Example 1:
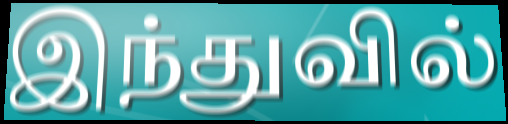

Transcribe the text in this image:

இந்துவில்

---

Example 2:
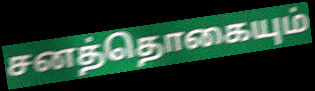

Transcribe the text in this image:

சனத்தொகையும்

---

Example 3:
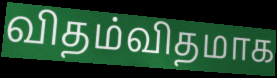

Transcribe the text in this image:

விதம்விதமாக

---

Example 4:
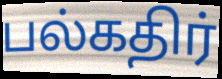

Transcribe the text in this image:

பல்கதிர்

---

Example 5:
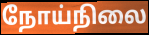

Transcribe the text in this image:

நோய்நிலை